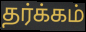
தர்க்கம்